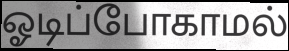
ஓடிப்போகாமல்